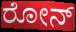
ರೋನ್